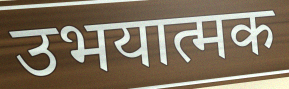
उभयात्मक